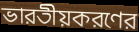
ভারতীয়করণের